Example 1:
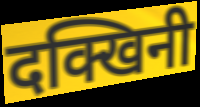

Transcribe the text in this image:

दक्खिनी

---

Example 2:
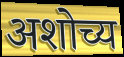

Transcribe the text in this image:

अशोच्य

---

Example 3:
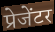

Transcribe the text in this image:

प्रेजेंटर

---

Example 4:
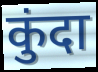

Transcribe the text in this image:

कुंदा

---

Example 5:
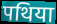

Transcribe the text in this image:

पथिया